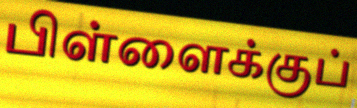
பிள்ளைக்குப்